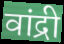
वांद्री